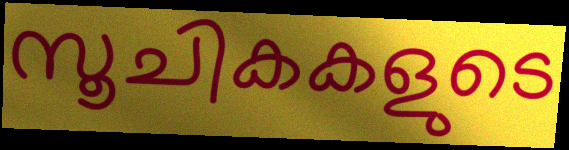
സൂചികകളുടെ